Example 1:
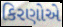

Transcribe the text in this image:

કિરણોએ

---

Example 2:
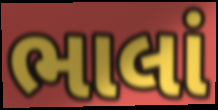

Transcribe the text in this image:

ભાલાં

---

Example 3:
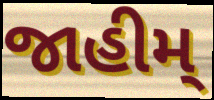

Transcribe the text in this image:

જાહીમ્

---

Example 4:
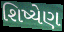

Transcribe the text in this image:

શિષ્યેણ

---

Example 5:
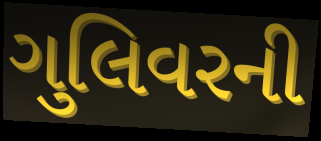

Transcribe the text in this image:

ગુલિવરની